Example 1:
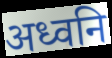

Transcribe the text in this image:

अध्वनि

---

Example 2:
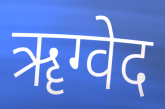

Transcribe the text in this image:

ॠग्वेद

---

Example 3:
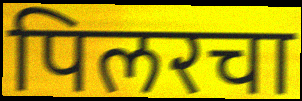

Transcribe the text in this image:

पिलरचा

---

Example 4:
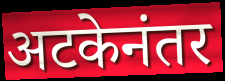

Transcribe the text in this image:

अटकेनंतर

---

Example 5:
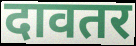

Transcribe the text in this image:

दावतर